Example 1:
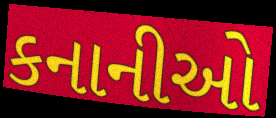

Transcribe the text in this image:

કનાનીઓ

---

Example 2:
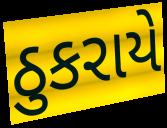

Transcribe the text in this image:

ઠુકરાયે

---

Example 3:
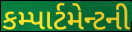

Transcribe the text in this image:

કમ્પાર્ટમેન્ટની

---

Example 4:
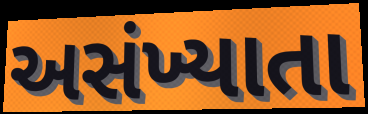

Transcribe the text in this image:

અસંખ્યાતા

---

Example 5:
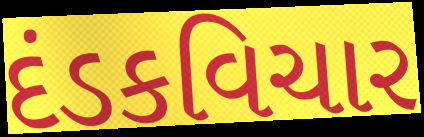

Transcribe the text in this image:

દંડકવિચાર